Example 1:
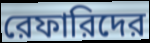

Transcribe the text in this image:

রেফারিদের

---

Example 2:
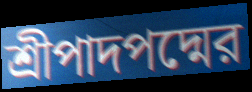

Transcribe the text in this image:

শ্রীপাদপদ্মের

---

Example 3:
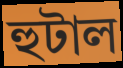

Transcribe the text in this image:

হুটাল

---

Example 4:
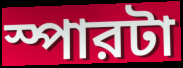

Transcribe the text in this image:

স্পারটা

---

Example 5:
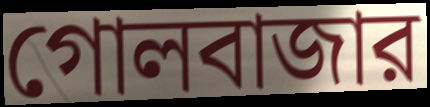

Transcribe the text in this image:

গোলবাজার